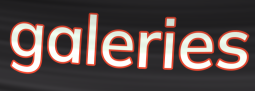
galeries